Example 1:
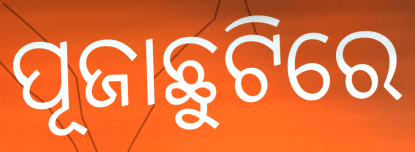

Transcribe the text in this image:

ପୂଜାଛୁଟିରେ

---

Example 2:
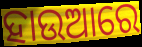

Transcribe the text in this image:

ହାଉଆରେ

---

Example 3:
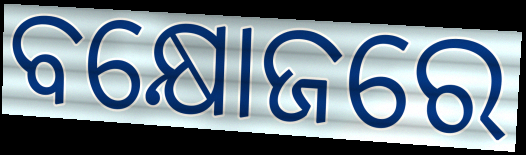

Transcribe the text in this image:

ବକ୍ଷୋଜରେ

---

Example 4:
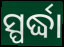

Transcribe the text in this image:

ସ୍ପର୍ଦ୍ଧା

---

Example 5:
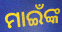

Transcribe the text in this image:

ମାଇଁଙ୍କ